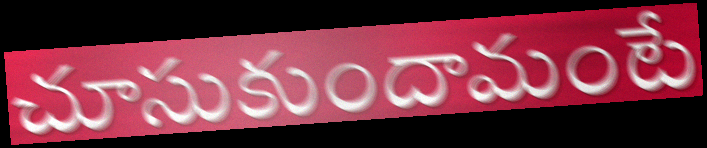
చూసుకుందామంటే